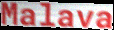
Malava